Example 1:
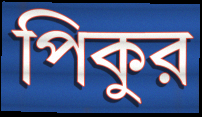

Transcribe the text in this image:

পিকুর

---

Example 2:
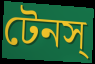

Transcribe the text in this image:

টেনস্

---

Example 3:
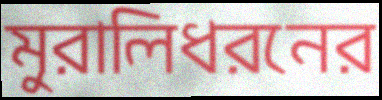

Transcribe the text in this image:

মুরালিধরনের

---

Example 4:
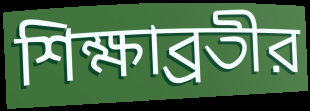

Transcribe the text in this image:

শিক্ষাব্রতীর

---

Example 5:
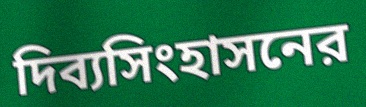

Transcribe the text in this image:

দিব্যসিংহাসনের